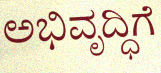
ಅಭಿವೃದ್ಧಿಗೆ